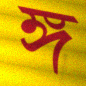
ঙ্গ